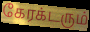
கேரக்டரும்